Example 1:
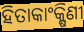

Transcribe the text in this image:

ହିତାକାଂକ୍ଷିଣୀ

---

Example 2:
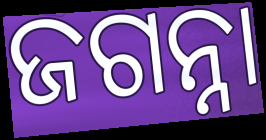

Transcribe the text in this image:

ଜଗନ୍ନା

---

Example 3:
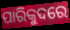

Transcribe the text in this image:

ପାରିକୁଦରେ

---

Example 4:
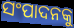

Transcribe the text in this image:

ସଂପାଦନକୁ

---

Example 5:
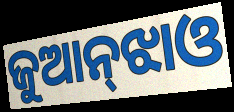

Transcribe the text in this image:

ଜୁଆନ୍‌ଝାଓ